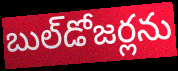
బుల్‌డోజర్లను